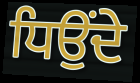
ਧਿਉਂਦੇ